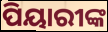
ପିୟାରୀଙ୍କ